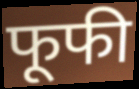
फूफी